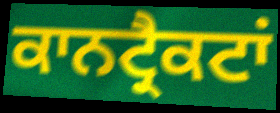
ਕਾਨਟ੍ਰੈਕਟਾਂ